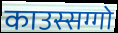
काउस्सग्गो